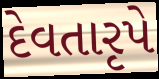
દેવતારૃપે